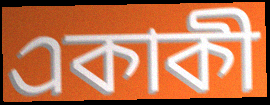
একাকী